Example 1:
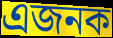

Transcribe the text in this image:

এজনক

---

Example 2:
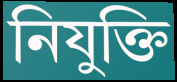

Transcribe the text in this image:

নিযুক্তি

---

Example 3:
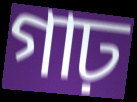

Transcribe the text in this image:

গাঢ়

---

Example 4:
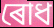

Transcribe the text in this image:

ৰোধ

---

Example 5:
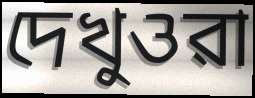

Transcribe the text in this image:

দেখুওৱা